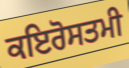
ਕਇਰੋਸਤਮੀ